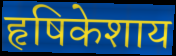
हृषिकेशाय